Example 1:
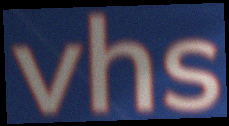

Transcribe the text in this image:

vhs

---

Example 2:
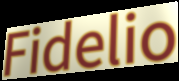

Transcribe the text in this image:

Fidelio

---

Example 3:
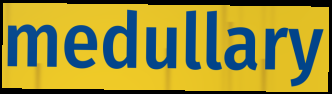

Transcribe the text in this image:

medullary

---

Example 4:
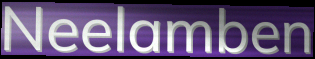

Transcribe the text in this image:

Neelamben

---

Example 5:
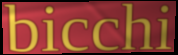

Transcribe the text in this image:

bicchi